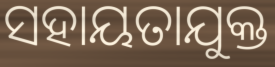
ସହାୟତାଯୁକ୍ତ